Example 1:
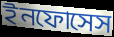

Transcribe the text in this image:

ইনফোসেস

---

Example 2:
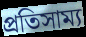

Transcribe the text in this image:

প্রতিসাম্য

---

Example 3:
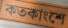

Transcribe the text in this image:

কতকাংশে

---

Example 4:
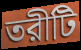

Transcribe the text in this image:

তরীটি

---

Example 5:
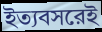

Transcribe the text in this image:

ইত্যবসরেই